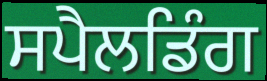
ਸਪੈਲਡਿੰਗ